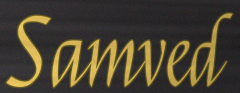
Samved